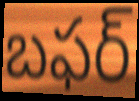
బఫర్